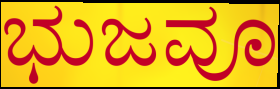
ಭುಜವೂ